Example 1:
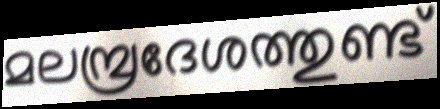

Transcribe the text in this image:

മലമ്പ്രദേശത്തുണ്ട്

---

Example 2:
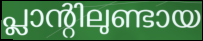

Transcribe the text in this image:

പ്ലാന്റിലുണ്ടായ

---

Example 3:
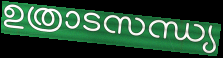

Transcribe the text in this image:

ഉത്രാടസന്ധ്യ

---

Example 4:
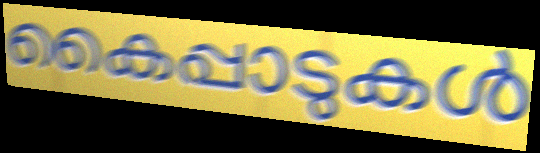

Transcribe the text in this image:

കൈപ്പാടുകൾ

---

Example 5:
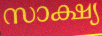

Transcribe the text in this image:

സാക്ഷ്യ